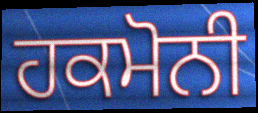
ਹਕਮੋਨੀ